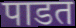
पाडत